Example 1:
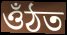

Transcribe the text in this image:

ওঁঠত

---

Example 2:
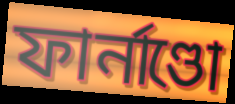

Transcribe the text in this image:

ফাৰ্নাণ্ডো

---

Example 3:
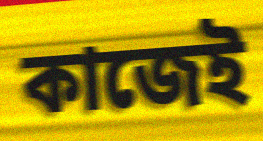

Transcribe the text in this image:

কাজেই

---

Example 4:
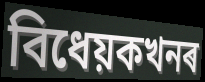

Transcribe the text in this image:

বিধেয়কখনৰ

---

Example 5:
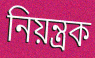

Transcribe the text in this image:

নিয়ন্ত্ৰক